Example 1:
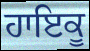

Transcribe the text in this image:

ਹਾਇਕੂ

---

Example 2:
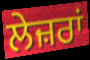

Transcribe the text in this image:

ਲੇਜ਼ਰਾਂ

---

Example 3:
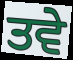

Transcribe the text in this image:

ਤਵੇ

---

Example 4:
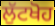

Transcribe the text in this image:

ਲੁੱਟਖੋਹ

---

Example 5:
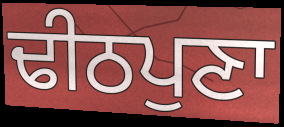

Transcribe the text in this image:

ਢੀਠਪੁਣਾ